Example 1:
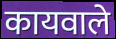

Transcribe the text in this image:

कायवाले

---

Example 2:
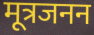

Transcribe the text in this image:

मूत्रजनन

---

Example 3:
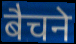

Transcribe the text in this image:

बैचने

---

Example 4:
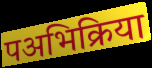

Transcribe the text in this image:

पअभिक्रिया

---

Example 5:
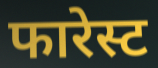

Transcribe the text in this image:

फारेस्ट